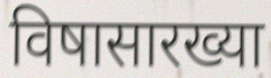
विषासारख्या